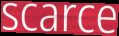
scarce